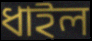
ধাইল